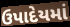
ઉપાદેયમાં